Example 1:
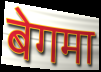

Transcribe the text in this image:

बेगमा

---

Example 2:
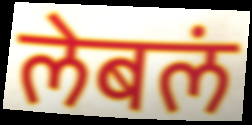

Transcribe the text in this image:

लेबलं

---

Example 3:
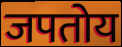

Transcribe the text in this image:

जपतोय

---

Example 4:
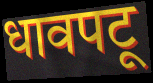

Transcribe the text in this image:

धावपटू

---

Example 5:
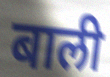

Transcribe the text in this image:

बाली